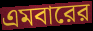
এমবারের